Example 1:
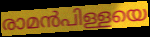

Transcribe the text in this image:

രാമൻപിള്ളയെ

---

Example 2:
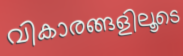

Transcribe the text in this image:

വികാരങ്ങളിലൂടെ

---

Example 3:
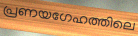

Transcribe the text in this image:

പ്രണയഗേഹത്തിലെ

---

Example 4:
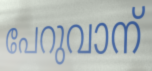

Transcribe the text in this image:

പേറുവാന്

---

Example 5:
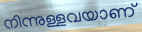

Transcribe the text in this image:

നിന്നുള്ളവയാണ്